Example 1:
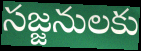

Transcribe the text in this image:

సజ్జనులకు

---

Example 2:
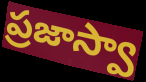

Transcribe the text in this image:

ప్రజాస్వా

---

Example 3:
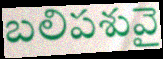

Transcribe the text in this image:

బలిపశువై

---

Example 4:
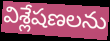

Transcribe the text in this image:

విశ్లేషణలను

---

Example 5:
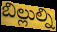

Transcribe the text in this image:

బిల్లుల్ని